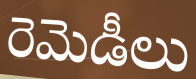
రెమెడీలు